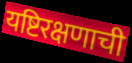
यष्टिरक्षणाची